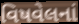
વિષવેલનાં